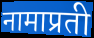
नामाप्रती